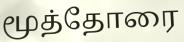
மூத்தோரை